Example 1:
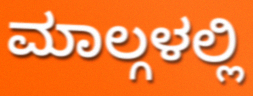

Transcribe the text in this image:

ಮಾಲ್ಗಳಲ್ಲಿ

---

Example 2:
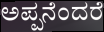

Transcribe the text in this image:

ಅಪ್ಪನೆಂದರೆ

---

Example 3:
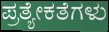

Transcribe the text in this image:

ಪ್ರತ್ಯೇಕತೆಗಳು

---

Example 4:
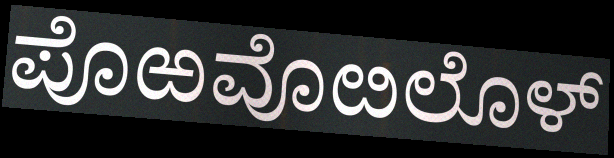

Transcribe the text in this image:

ಪೊಱವೊೞಲೊಳ್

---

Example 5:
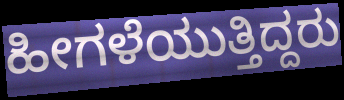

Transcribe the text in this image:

ಹೀಗಳೆಯುತ್ತಿದ್ದರು